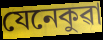
যেনেকুৱা